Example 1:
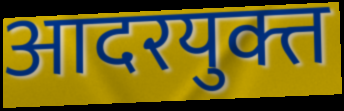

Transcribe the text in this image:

आदरयुक्त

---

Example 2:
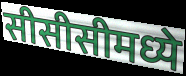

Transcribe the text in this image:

सीसीसीमध्ये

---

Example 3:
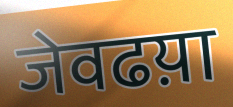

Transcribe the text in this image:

जेवढय़ा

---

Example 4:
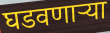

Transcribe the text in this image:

घडवणाऱ्या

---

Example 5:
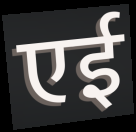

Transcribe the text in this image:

एई